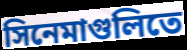
সিনেমাগুলিতে